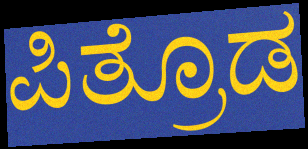
ಪಿತ್ರೊಡ